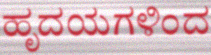
ಹೃದಯಗಳಿಂದ